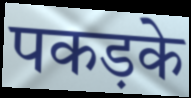
पकड़के